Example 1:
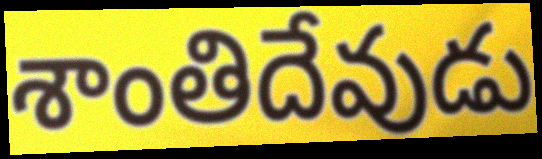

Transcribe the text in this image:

శాంతిదేవుడు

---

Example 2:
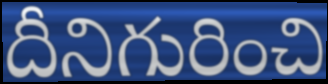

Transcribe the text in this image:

దీనిగురించి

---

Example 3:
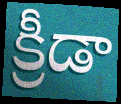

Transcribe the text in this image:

క్రీడా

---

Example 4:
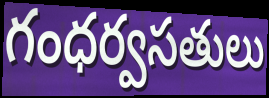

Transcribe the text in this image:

గంధర్వసతులు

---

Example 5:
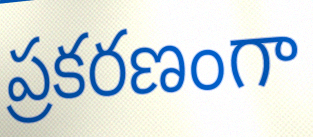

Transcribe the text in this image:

ప్రకరణంగా